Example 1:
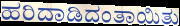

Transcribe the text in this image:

ಹರಿದಾಡಿದಂತಾಯಿತು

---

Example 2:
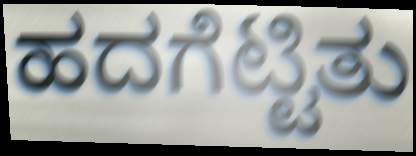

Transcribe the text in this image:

ಹದಗೆಟ್ಟಿತು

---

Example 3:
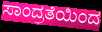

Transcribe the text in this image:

ಸಾಂದ್ರತೆಯಿಂದ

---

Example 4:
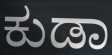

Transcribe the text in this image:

ಕುಡಾ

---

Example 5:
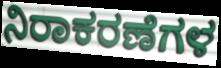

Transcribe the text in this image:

ನಿರಾಕರಣೆಗಳ